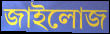
জাইলোজ